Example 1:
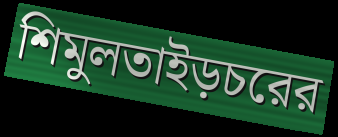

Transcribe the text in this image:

শিমুলতাইড়চরের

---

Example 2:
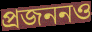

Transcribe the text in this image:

প্রজননও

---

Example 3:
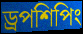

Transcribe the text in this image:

ড্রপশিপিং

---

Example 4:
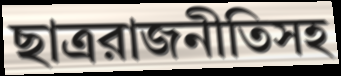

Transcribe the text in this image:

ছাত্ররাজনীতিসহ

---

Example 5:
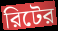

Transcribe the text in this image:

রিটের